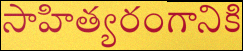
సాహిత్యరంగానికి